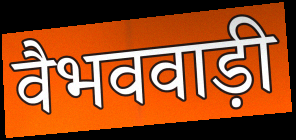
वैभववाड़ी